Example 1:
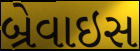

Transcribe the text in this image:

બ્રેવાઇસ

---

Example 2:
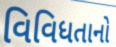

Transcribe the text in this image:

વિવિધતાનો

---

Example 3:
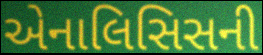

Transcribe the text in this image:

એનાલિસિસની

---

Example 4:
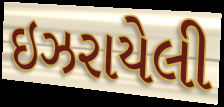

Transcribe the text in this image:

ઇઝરાયેલી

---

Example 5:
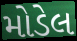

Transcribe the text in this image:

મોડેલ